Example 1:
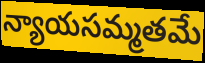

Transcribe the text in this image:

న్యాయసమ్మతమే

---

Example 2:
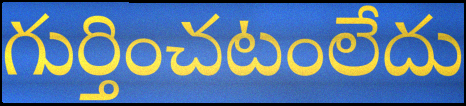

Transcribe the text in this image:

గుర్తించటంలేదు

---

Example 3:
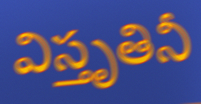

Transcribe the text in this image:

విస్తృతినీ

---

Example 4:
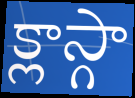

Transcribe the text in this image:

క్లాస్గా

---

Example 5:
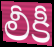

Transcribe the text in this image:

లీకీ